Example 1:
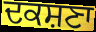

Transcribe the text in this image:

ਦਕਸ਼ਣਾ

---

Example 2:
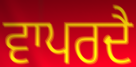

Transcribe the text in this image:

ਵਾਪਰਦੈ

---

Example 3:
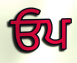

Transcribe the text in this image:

ਓਪ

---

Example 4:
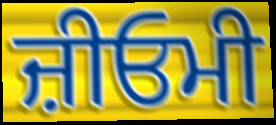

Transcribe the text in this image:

ਜ਼ੀਓਮੀ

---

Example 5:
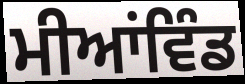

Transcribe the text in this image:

ਮੀਆਂਵਿੰਡ